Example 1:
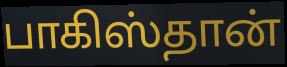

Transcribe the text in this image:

பாகிஸ்தான்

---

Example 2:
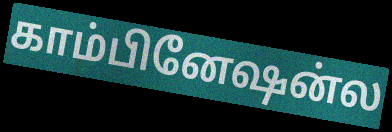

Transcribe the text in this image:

காம்பினேஷன்ல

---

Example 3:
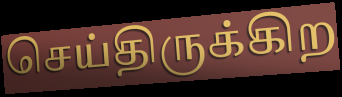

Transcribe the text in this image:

செய்திருக்கிற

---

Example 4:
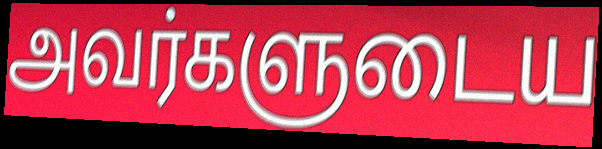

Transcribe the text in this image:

அவர்களுடைய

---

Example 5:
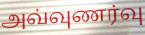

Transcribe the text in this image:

அவ்வுணர்வு